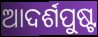
ଆଦର୍ଶପୁଷ୍ଟ